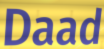
Daad